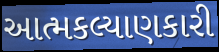
આત્મકલ્યાણકારી